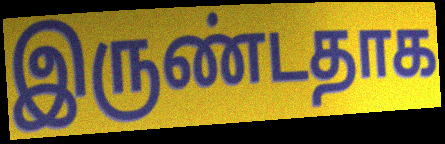
இருண்டதாக